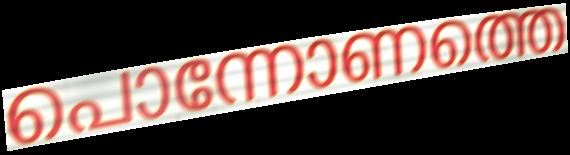
പൊന്നോണത്തെ